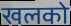
खलको